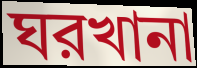
ঘরখানা